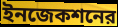
ইনজেকশনের